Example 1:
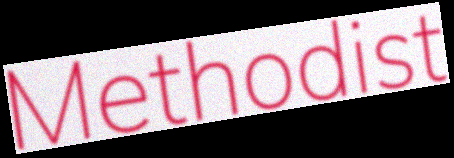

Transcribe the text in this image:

Methodist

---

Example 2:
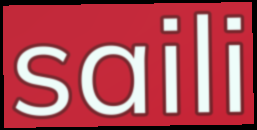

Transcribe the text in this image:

saili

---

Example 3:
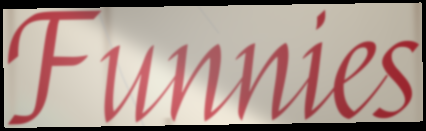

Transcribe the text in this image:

Funnies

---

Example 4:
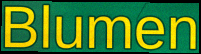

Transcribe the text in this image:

Blumen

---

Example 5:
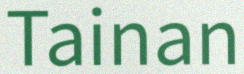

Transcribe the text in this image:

Tainan